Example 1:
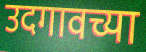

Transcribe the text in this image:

उदगावच्या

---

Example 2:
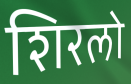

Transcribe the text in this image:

शिरलो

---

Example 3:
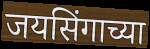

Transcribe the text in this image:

जयसिंगाच्या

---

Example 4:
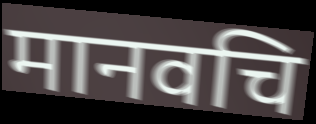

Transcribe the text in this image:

मानवचि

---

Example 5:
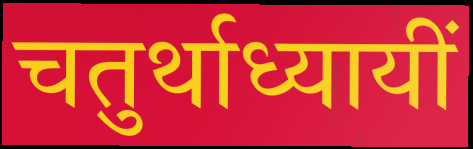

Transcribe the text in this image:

चतुर्थाध्यायीं